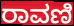
ರಾವಣಿ